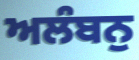
ਅਲੰਬਨੁ